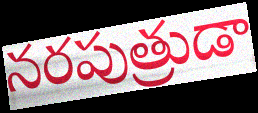
నరపుత్రుడా